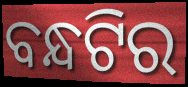
ବନ୍ଧଟିର